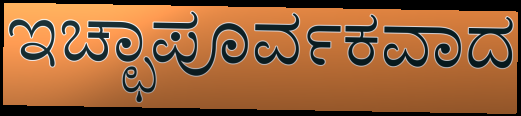
ಇಚ್ಛಾಪೂರ್ವಕವಾದ